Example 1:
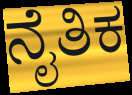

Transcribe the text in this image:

ನೈತಿಕ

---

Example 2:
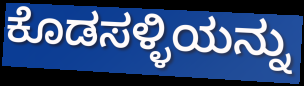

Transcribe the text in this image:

ಕೊಡಸಳ್ಳಿಯನ್ನು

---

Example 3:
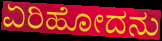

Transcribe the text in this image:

ಏರಿಹೋದನು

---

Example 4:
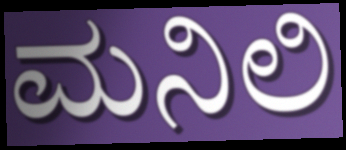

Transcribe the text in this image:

ಮನಿಲಿ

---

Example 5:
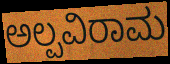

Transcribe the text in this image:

ಅಲ್ಪವಿರಾಮ